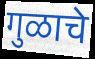
गुळाचे